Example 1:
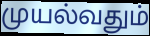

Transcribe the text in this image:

முயல்வதும்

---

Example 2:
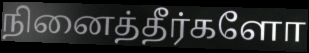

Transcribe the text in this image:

நினைத்தீர்களோ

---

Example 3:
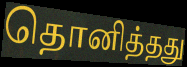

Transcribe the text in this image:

தொனித்தது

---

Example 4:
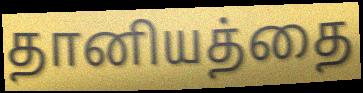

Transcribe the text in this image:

தானியத்தை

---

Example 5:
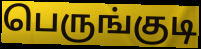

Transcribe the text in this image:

பெருங்குடி